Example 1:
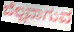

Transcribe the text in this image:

ಬೆಲ್ಲವಾಗುವ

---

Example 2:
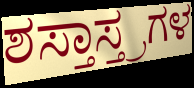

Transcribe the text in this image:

ಶಸ್ತಾಸ್ತ್ರಗಳ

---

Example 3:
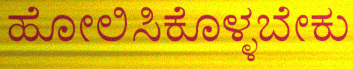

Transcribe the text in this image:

ಹೋಲಿಸಿಕೊಳ್ಳಬೇಕು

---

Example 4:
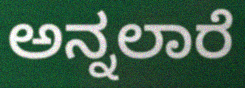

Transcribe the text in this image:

ಅನ್ನಲಾರೆ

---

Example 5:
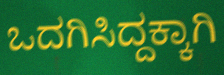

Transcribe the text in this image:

ಒದಗಿಸಿದ್ದಕ್ಕಾಗಿ